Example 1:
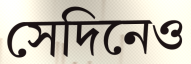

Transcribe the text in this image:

সেদিনেও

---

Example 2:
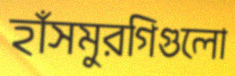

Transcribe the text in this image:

হাঁসমুরগিগুলো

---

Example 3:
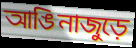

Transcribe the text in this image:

আঙিনাজুড়ে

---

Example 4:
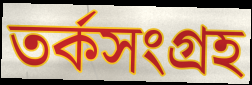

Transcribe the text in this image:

তর্কসংগ্রহ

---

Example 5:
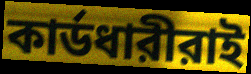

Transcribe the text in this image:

কার্ডধারীরাই